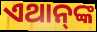
ଏଥାନ୍‍ଙ୍କ